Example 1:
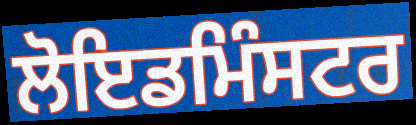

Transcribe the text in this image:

ਲੋਇਡਮਿੰਸਟਰ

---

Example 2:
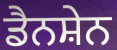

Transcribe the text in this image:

ਡੈਨਸ਼ੇਨ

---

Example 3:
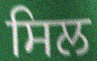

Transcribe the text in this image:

ਸਿਲ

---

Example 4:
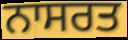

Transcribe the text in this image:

ਨਾਸਰਤ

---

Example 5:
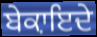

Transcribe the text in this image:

ਬੇਕ਼ਾਇਦੇ